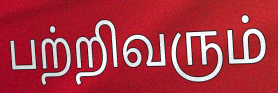
பற்றிவரும்